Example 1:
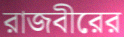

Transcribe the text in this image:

রাজবীরের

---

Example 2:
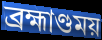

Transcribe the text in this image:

ব্রহ্মাণ্ডময়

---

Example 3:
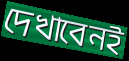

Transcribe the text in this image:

দেখাবেনই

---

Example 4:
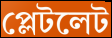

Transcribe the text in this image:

প্লেটলেট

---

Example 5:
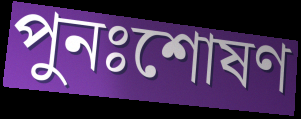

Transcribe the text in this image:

পুনঃশোষণ